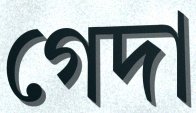
গেদা